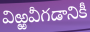
విఱ్ఱవీగడానికీ